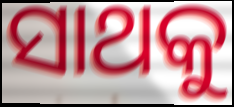
ସାଥକୁ